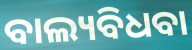
ବାଲ୍ୟବିଧବା